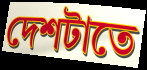
দেশটাতে